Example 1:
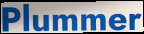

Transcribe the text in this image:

Plummer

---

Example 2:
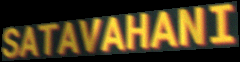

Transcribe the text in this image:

SATAVAHANI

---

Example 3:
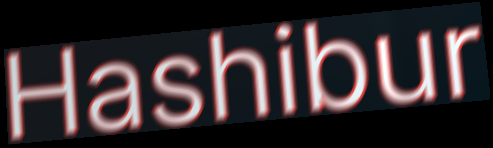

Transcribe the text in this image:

Hashibur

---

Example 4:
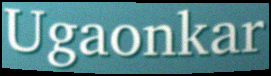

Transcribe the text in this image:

Ugaonkar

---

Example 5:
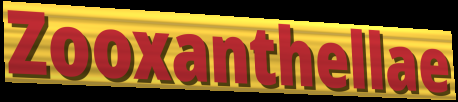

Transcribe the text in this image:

Zooxanthellae